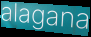
alagana